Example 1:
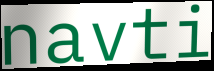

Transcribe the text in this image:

navti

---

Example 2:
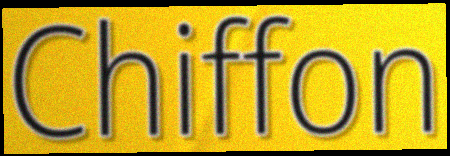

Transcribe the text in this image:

Chiffon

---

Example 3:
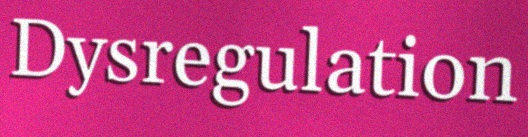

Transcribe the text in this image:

Dysregulation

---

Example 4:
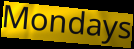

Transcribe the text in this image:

Mondays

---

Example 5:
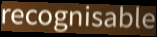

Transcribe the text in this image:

recognisable